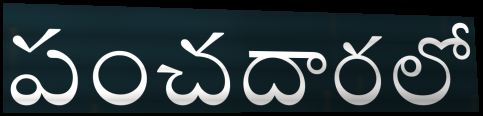
పంచదారలో